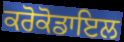
ਕਰੋਕੋਡਾਇਲ